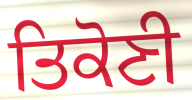
ਤਿਕੋਣੀ